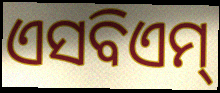
ଏସବିଏମ୍